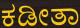
ಕಡೀತಾ